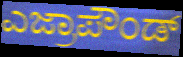
ಎಜ್ರಾಪೌಂಡ್